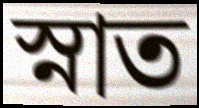
স্নাত